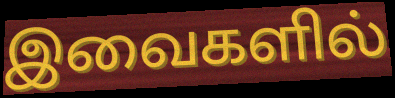
இவைகளில்